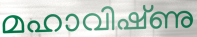
മഹാവിഷ്‌ണു